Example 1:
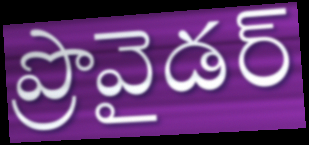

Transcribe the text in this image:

ప్రొవైడర్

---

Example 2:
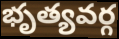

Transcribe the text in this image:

భృత్యవర్గ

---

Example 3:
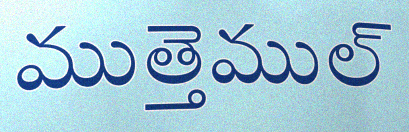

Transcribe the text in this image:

ముత్తెముల్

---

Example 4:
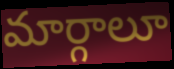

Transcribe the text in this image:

మార్గాలూ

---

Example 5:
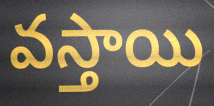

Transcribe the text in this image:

వస్తాయి